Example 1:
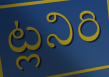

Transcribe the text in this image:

ట్లనిరి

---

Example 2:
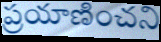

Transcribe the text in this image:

ప్రయాణించని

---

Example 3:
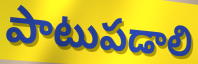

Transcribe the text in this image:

పాటుపడాలి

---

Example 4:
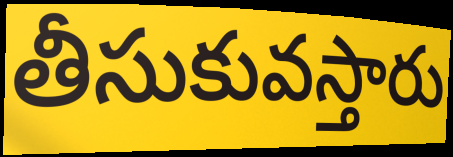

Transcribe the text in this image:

తీసుకువస్తారు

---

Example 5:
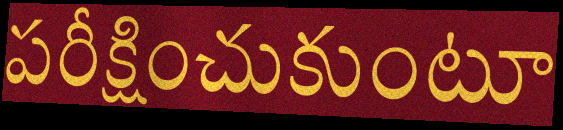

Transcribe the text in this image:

పరీక్షించుకుంటూ